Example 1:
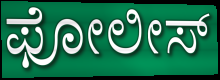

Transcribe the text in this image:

ಫೋಲೀಸ್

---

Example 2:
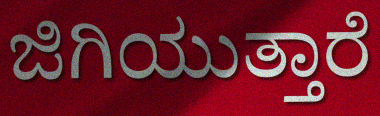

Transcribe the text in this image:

ಜಿಗಿಯುತ್ತಾರೆ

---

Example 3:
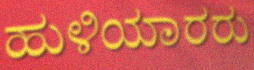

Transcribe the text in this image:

ಹುಳಿಯಾರರು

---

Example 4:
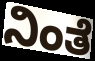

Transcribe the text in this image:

ನಿಂತೆ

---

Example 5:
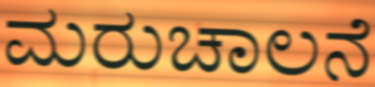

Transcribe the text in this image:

ಮರುಚಾಲನೆ